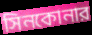
সিনকোনার